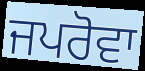
ਜਪਰੋਵਾ